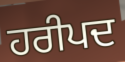
ਹਰੀਪਦ